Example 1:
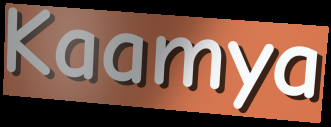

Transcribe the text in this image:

Kaamya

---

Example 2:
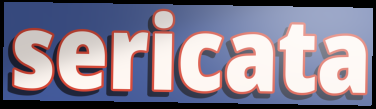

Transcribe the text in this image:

sericata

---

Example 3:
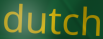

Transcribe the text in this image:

dutch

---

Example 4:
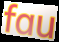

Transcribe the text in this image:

fau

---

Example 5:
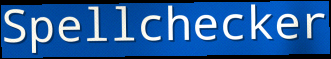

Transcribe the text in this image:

Spellchecker